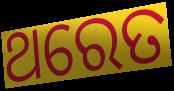
ଥରେତ